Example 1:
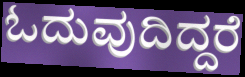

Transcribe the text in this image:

ಓದುವುದಿದ್ದರೆ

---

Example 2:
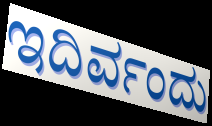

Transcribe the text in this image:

ಇದಿರ್ವಂದು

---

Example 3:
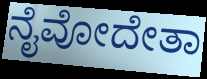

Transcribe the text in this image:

ನೈವೋದೇತಾ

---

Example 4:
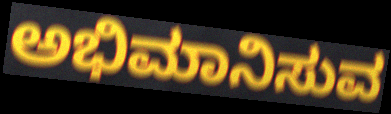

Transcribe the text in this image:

ಅಭಿಮಾನಿಸುವ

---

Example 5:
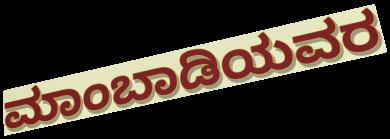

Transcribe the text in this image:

ಮಾಂಬಾಡಿಯವರ